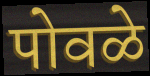
पोवळे